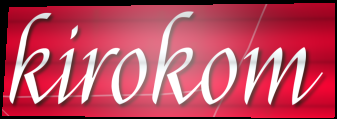
kirokom